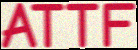
ATTF